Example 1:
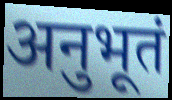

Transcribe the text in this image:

अनुभूतं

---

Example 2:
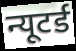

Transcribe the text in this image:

न्यूटर्ड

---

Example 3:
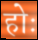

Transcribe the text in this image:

होः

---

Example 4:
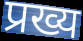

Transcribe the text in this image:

प्रख्य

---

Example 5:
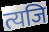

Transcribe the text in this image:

त्यजि